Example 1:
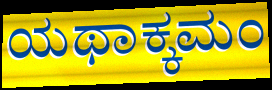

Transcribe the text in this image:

ಯಥಾಕ್ಕಮಂ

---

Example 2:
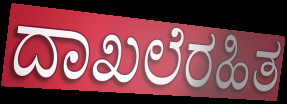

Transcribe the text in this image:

ದಾಖಲೆರಹಿತ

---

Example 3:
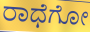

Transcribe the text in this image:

ರಾಧೆಗೋ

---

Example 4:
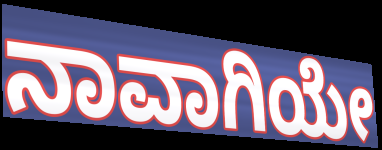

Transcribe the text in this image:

ನಾವಾಗಿಯೇ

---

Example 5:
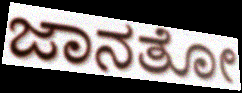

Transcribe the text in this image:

ಜಾನತೋ